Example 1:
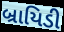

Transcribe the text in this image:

બ્રાયિડી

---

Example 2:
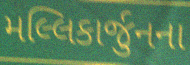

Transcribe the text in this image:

મલ્લિકાર્જુનના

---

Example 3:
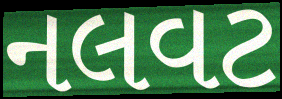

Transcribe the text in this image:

નલવટ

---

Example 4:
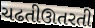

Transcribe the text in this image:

ચઢતીઊતરતી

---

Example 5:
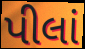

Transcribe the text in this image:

પીલાં